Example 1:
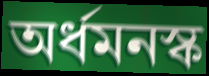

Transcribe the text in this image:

অর্ধমনস্ক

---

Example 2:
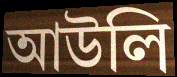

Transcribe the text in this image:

আউলি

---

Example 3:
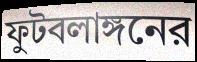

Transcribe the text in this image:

ফুটবলাঙ্গনের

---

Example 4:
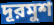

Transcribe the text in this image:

দূরমুশ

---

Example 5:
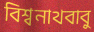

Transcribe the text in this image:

বিশ্বনাথবাবু